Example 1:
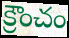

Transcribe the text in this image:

క్రౌంచం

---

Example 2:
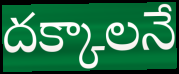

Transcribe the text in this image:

దక్కాలనే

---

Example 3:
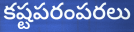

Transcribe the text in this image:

కష్టపరంపరలు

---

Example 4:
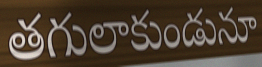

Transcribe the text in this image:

తగులాకుండునూ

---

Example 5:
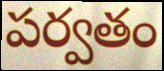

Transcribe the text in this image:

పర్వతం